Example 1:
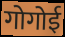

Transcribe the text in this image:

गोगोई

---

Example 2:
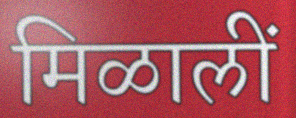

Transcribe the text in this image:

मिळालीं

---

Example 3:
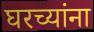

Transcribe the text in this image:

घरच्यांना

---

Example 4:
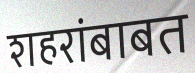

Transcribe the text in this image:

शहरांबाबत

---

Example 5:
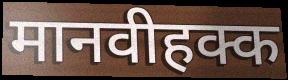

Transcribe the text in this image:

मानवीहक्क